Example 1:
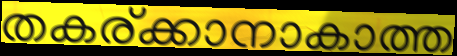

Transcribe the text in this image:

തകര്ക്കാനാകാത്ത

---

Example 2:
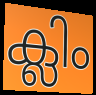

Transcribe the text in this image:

ക്ലിം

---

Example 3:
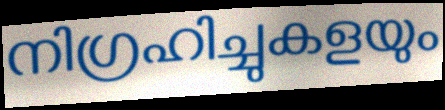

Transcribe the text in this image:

നിഗ്രഹിച്ചുകളയും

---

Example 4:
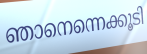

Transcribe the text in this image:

ഞാനെന്നെക്കൂടി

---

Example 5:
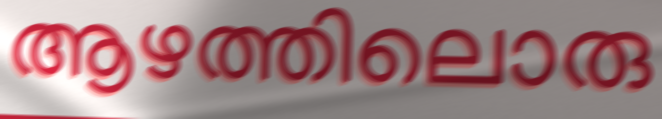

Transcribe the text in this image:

ആഴത്തിലൊരു